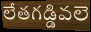
లేతగడ్డివలె